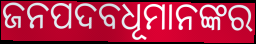
ଜନପଦବଧୂମାନଙ୍କର